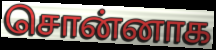
சொன்னாக